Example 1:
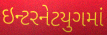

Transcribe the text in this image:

ઇન્ટરનેટયુગમાં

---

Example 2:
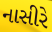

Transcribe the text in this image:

નાસીરે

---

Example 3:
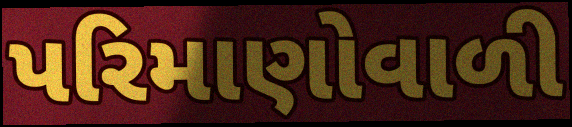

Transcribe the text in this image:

પરિમાણોવાળી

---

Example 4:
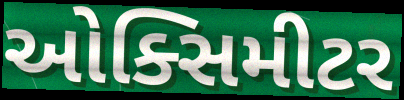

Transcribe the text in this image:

ઓક્સિમીટર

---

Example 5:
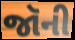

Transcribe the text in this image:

જૉની